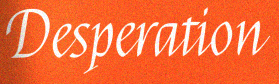
Desperation